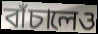
বাঁচালেও